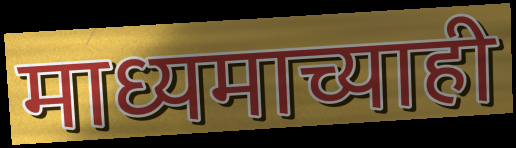
माध्यमाच्याही